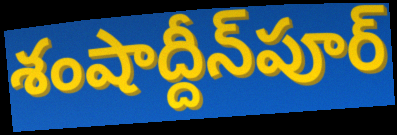
శంషాద్దీన్‌పూర్